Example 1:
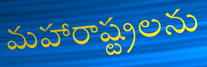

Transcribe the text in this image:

మహారాష్ట్రలను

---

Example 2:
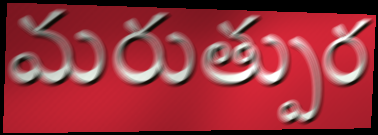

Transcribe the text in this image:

మరుత్పుర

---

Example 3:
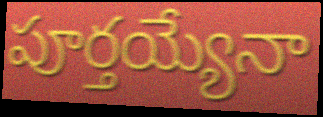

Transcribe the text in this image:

పూర్తయ్యేనా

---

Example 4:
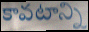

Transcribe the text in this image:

కావటాన్ని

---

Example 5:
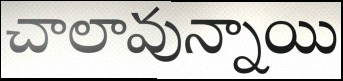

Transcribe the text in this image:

చాలావున్నాయి